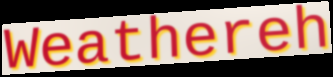
Weathereh